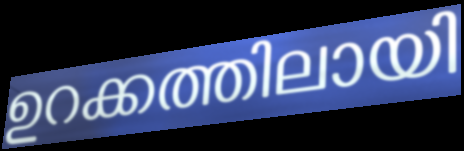
ഉറക്കത്തിലായി